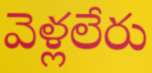
వెళ్లలేరు